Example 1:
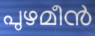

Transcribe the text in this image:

പുഴമീൻ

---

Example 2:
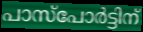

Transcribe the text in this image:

പാസ്പോർട്ടിന്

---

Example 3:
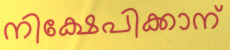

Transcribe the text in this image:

നിക്ഷേപിക്കാന്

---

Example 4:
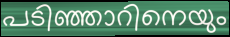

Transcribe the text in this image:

പടിഞ്ഞാറിനെയും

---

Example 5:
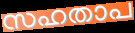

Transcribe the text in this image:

സഹതാപ